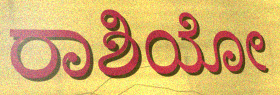
ರಾಶಿಯೋ